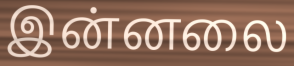
இன்னலை